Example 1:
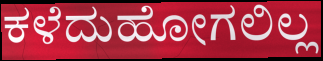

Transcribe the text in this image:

ಕಳೆದುಹೋಗಲಿಲ್ಲ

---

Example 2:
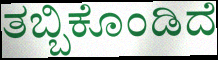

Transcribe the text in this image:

ತಬ್ಬಿಕೊಂಡಿದೆ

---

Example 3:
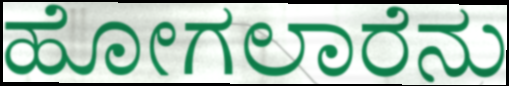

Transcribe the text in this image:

ಹೋಗಲಾರೆನು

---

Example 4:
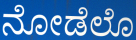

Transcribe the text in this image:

ನೋಡೆಲೊ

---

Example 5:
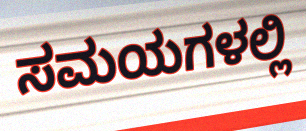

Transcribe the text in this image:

ಸಮಯಗಳಲ್ಲಿ